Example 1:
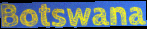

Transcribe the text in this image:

Botswana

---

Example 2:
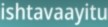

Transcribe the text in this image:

ishtavaayitu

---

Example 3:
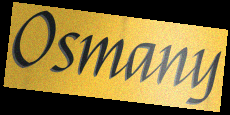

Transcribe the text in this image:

Osmany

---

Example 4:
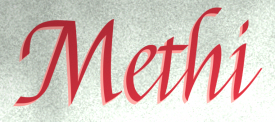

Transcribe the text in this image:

Methi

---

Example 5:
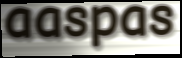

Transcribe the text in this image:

aaspas